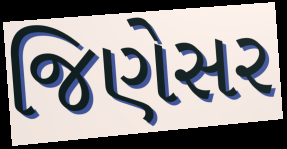
જિણેસર